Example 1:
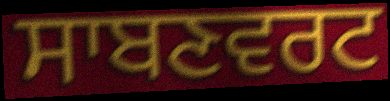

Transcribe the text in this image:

ਸਾਬਣਵਰਟ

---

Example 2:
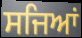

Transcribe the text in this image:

ਸਜਿਆਂ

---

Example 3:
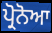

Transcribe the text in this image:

ਪ੍ਰੋਨੋਆ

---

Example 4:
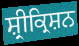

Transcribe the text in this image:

ਸ਼੍ਰੀਕ੍ਰਿਸ਼ਨ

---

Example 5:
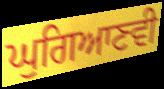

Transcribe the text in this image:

ਘੁਗਿਆਣਵੀ